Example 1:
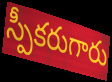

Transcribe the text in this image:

స్పీకరుగారు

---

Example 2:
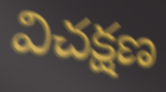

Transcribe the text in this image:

విచక్షణ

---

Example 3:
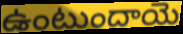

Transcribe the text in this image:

ఉంటుందాయె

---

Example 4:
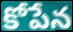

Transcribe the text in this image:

కోపేన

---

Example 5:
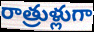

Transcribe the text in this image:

రాత్రుళ్లుగా